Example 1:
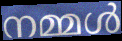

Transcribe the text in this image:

നമ്മൾ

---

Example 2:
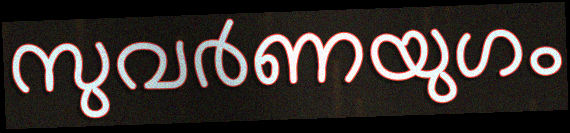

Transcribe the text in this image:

സുവർണയുഗം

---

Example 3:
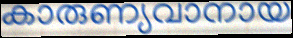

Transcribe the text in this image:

കാരുണ്യവാനായ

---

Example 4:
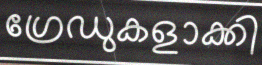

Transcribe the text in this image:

ഗ്രേഡുകളാക്കി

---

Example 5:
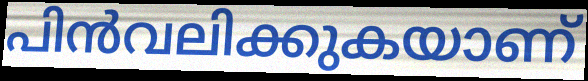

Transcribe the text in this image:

പിൻവലിക്കുകയാണ്